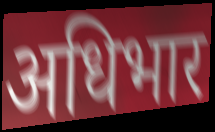
अधिभार